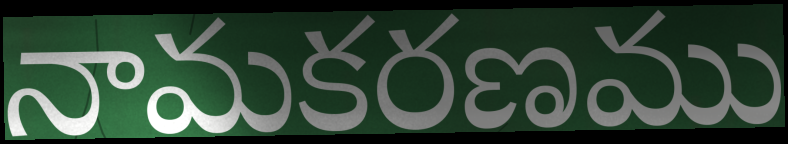
నామకరణము